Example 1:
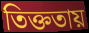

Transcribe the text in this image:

তিক্ততায়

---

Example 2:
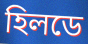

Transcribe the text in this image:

হিলডে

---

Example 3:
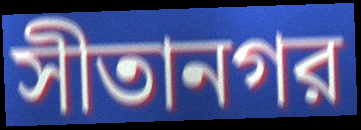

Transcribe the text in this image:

সীতানগর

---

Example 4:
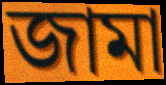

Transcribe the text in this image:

জামা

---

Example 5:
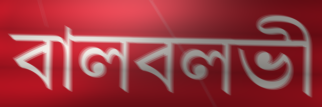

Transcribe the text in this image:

বালবলভী